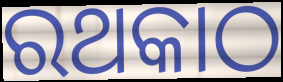
ରଥକାଠ